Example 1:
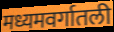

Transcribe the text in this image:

मध्यमवर्गातली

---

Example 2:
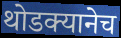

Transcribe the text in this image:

थोडक्यानेच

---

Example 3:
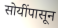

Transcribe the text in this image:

सोयींपासून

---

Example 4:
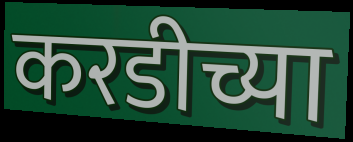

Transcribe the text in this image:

करडीच्या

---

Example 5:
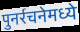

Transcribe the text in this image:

पुनर्रचनेमध्ये